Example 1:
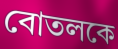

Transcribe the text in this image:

বোতলকে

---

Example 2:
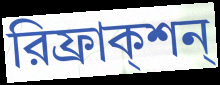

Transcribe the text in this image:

রিফ্রাক্শন্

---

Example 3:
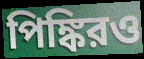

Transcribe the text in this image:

পিঙ্কিরও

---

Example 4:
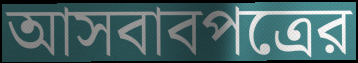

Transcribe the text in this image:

আসবাবপত্রের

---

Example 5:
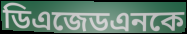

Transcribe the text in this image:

ডিএজেডএনকে